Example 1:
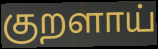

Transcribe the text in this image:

குறளாய்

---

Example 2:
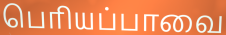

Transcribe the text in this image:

பெரியப்பாவை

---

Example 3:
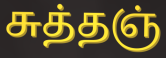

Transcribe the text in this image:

சுத்தஞ்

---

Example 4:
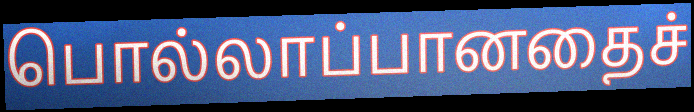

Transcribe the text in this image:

பொல்லாப்பானதைச்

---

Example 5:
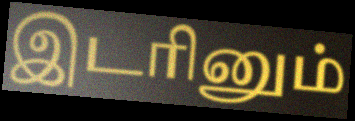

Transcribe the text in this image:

இடரினும்